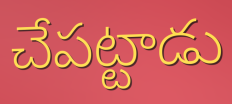
చేపట్టాడు